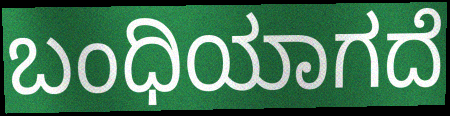
ಬಂಧಿಯಾಗದೆ